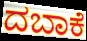
ದಬಾಕೆ